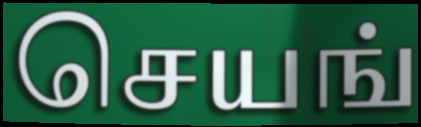
செயங்